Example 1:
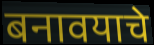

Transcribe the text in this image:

बनावयाचे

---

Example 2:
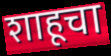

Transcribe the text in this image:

शाहूचा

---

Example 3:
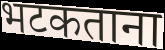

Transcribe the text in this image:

भटकताना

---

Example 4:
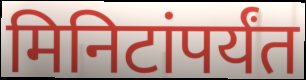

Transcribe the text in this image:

मिनिटांपर्यंत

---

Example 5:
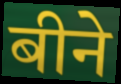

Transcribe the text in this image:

बीने